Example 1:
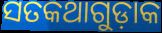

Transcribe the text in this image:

ସତକଥାଗୁଡ଼ାକ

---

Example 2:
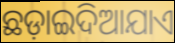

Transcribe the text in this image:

ଛଡ଼ାଇଦିଆଯାଏ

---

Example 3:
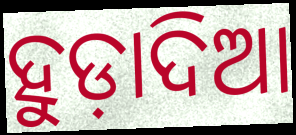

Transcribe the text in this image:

ହୁଡ଼ାଦିଆ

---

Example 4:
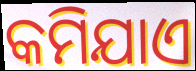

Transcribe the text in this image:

କମିଯାଏ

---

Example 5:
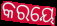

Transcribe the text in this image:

କରୟେ